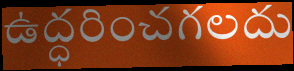
ఉద్ధరించగలదు